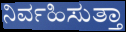
ನಿರ್ವಹಿಸುತ್ತಾ